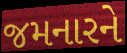
જમનારને